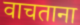
वाचताना